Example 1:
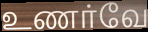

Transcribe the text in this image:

உணர்வே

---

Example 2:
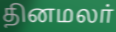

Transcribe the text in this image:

தினமலர்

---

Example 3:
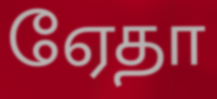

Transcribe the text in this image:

ஏேதா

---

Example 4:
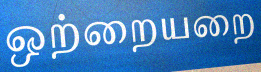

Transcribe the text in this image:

ஒற்றையறை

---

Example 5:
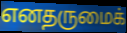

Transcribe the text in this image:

எனதருமைக்